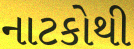
નાટકોથી